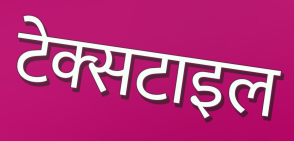
टेक्‍सटाइल